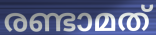
രണ്ടാമത്